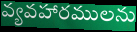
వ్యవహారములను